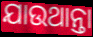
ଯାଉଥାନ୍ତା